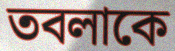
তবলাকে